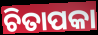
ଚିତାପକା